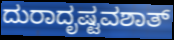
ದುರಾದೃಷ್ಟವಶಾತ್